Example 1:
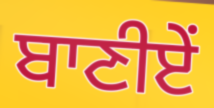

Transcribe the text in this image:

ਬਾਣੀਏਂ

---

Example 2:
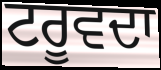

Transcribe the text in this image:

ਟਰੂਵਦਾ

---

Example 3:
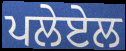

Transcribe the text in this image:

ਪਲੇਏਲ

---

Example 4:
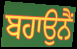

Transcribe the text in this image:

ਬਹਾਉਨੈਂ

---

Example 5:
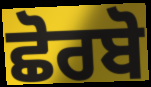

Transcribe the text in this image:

ਛੋਰਬੋ